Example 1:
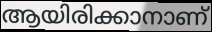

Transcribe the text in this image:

ആയിരിക്കാനാണ്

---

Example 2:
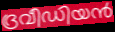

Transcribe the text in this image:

ദ്രവീഡിയൻ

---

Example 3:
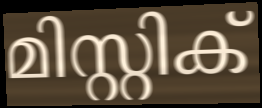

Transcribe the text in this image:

മിസ്റ്റിക്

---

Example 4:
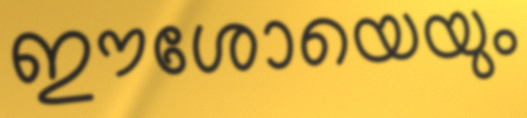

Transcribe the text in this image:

ഈശോയെയും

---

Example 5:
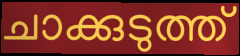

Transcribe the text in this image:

ചാക്കുടുത്ത്